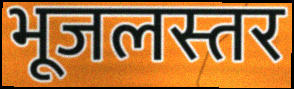
भूजलस्तर